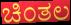
ಚಿಂತಲ